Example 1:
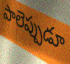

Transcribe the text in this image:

పాలెప్పుడూ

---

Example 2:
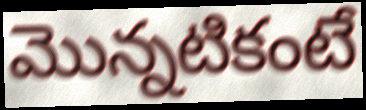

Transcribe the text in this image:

మొన్నటికంటే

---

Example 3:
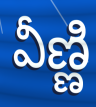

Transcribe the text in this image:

వీణ్ణి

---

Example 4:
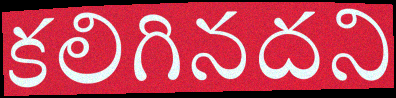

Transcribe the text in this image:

కలిగినదని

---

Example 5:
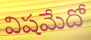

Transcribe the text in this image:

విషమేదో